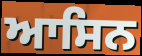
ਆਸਿਨ